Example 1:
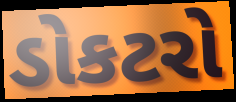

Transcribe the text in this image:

ડોકટરો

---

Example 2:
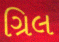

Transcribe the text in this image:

ગ્રિલ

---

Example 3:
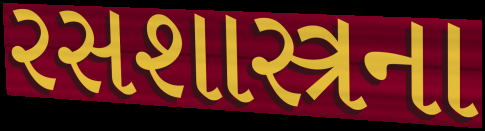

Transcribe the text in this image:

રસશાસ્ત્રના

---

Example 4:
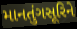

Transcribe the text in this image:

માનતુંગસૂરિને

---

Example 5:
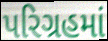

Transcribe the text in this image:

પરિગ્રહમાં